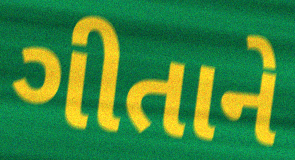
ગીતાને